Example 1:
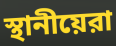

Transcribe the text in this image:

স্থানীয়েরা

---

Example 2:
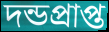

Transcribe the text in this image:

দন্ডপ্রাপ্ত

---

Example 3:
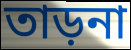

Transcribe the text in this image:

তাড়না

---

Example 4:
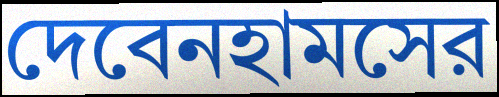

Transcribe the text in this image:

দেবেনহামসের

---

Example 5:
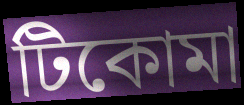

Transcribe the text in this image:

টিকোমা